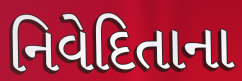
નિવેદિતાના